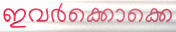
ഇവർക്കൊക്കെ